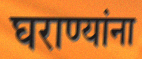
घराण्यांना